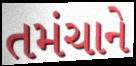
તમંચાને